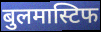
बुलमास्टिफ